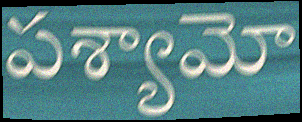
పశ్యామో